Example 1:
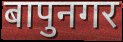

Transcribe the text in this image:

बापुनगर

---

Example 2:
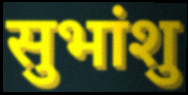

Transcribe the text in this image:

सुभांशु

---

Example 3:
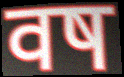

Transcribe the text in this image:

वष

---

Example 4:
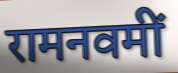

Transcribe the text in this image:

रामनवमीं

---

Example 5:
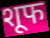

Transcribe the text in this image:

शूफ